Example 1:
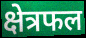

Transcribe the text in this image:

क्षेत्रफल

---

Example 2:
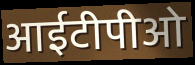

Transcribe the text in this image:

आईटीपीओ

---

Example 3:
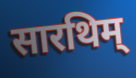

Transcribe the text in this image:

सारथिम्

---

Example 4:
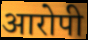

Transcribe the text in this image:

आरोपी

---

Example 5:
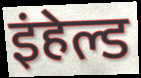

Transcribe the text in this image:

इंहेल्ड